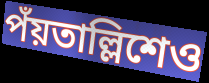
পঁয়তাল্লিশেও